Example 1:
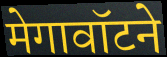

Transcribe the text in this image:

मेगावॉटने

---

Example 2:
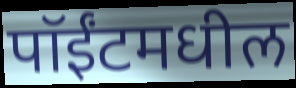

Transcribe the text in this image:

पॉईंटमधील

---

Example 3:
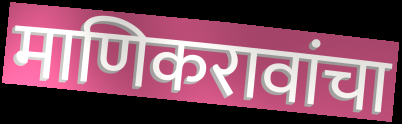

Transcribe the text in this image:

माणिकरावांचा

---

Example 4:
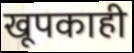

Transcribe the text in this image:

खूपकाही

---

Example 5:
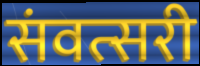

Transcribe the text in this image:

संवत्सरी